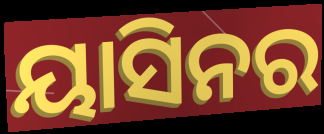
ୟାସିନର